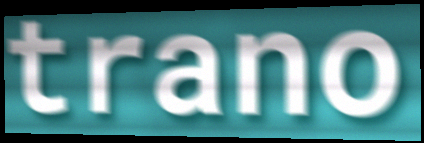
trano